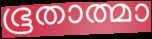
ഭൂതാത്മാ